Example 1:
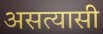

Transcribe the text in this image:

असत्यासी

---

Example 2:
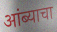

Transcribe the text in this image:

आंब्याचा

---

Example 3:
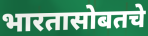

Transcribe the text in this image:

भारतासोबतचे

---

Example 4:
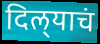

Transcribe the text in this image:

दिल्याचं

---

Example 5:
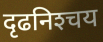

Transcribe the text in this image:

दृढनिश्‍चय